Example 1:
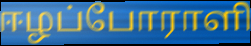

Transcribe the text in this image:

ஈழப்போராளி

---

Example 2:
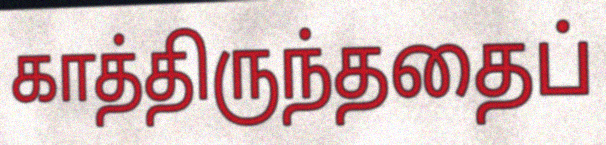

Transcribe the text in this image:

காத்திருந்ததைப்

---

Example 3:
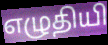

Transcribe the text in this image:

எழுதியி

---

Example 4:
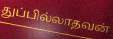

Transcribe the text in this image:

துப்பில்லாதவன்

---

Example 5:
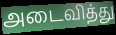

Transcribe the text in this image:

அடைவித்து